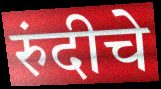
रुंदीचे